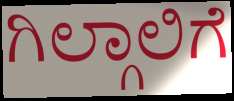
ಗಿಲ್ಗಾಲಿಗೆ